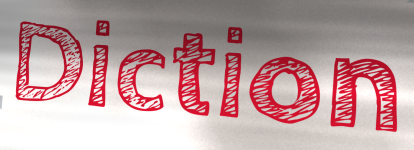
Diction